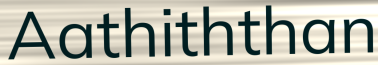
Aathiththan